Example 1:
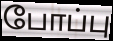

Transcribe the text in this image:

போப்பு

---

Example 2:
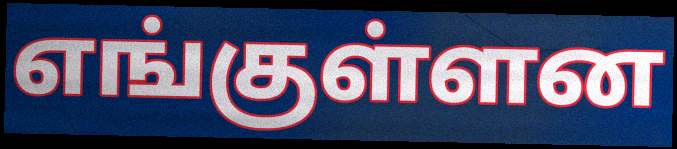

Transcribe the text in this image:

எங்குள்ளன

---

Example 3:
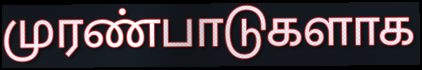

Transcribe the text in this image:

முரண்பாடுகளாக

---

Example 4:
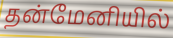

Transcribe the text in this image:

தன்மேனியில்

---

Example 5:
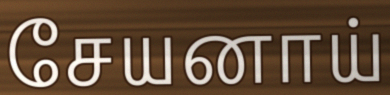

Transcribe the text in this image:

சேயனாய்